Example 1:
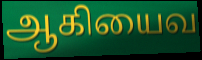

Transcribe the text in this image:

ஆகியைவ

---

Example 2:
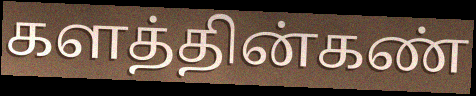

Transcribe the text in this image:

களத்தின்கண்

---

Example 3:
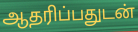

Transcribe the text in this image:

ஆதரிப்பதுடன்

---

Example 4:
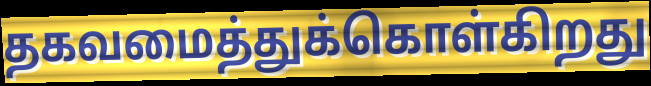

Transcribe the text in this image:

தகவமைத்துக்கொள்கிறது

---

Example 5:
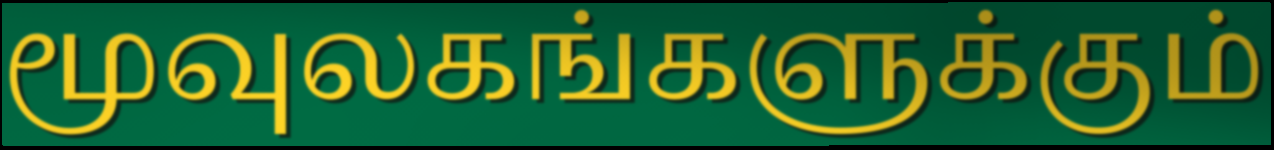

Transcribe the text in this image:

மூவுலகங்களுக்கும்